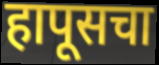
हापूसचा